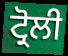
ਟ੍ਰੋਲੀ